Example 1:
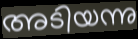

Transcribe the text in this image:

അടിയന്നു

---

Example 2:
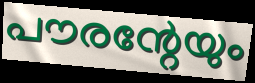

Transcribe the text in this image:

പൗരന്റേയും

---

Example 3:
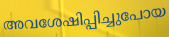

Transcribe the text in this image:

അവശേഷിപ്പിച്ചുപോയ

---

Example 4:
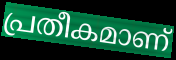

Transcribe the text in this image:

പ്രതീകമാണ്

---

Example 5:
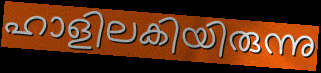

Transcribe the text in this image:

ഹാളിലകിയിരുന്നു